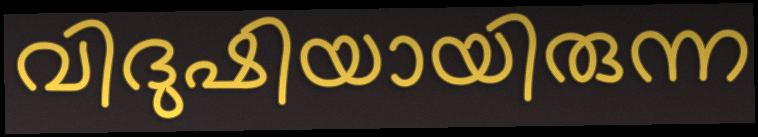
വിദുഷിയായിരുന്ന